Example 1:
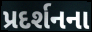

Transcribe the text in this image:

પ્રદર્શનના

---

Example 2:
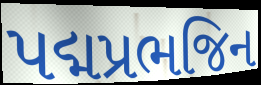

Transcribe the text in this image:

પદ્મપ્રભજિન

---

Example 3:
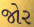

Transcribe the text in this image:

જોર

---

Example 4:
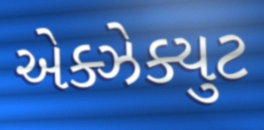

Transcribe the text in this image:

એક્ઝેક્યુટ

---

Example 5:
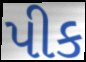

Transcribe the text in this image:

પીક